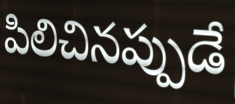
పిలిచినప్పుడే